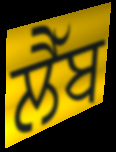
ਲੈੱਬ